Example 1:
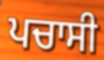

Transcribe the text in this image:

ਪਚਾਸੀ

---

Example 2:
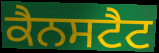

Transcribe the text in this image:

ਕੈਨਸਟੈਟ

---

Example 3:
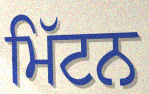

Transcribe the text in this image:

ਮਿੱਟਨ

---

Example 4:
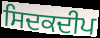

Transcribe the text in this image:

ਸਿਦਕਦੀਪ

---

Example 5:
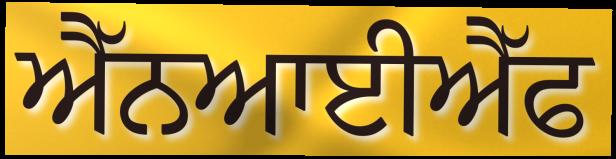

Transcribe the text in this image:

ਐੱਨਆਈਐੱਫ